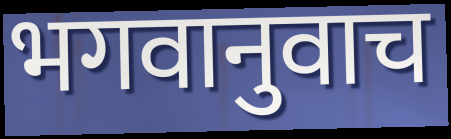
भगवानुवाच